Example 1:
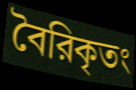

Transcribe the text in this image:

বৈরিকৃতং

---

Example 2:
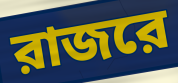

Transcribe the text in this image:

রাজরে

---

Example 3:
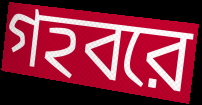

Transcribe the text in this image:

গহবরে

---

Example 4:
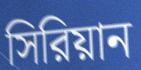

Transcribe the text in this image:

সিরিয়ান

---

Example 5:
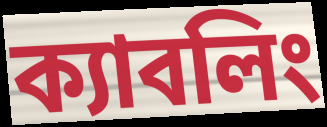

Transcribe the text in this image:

ক্যাবলিং